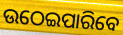
ଉଠେଇପାରିବେ